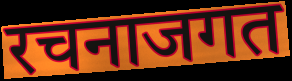
रचनाजगत